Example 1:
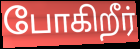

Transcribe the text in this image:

போகிறீர்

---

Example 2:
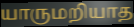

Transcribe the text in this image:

யாருமறியாத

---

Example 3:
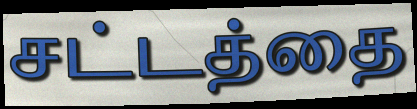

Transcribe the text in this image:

சட்டத்தை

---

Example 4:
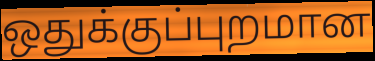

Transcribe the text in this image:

ஒதுக்குப்புறமான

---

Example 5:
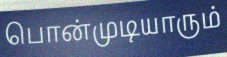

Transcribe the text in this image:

பொன்முடியாரும்